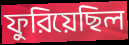
ফুরিয়েছিল